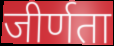
जीर्णता